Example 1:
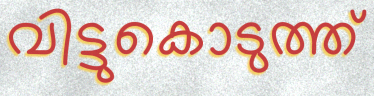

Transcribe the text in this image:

വിട്ടുകൊടുത്ത്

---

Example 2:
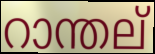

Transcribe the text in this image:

റാന്തല്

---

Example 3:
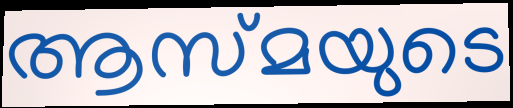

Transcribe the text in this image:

ആസ്മയുടെ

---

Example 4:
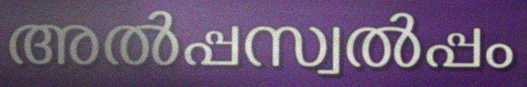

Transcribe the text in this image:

അൽപ്പസ്വൽപ്പം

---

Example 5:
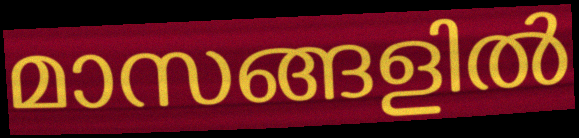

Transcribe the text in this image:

മാസങ്ങളിൽ